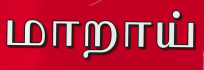
மாறாய்